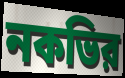
নকভির